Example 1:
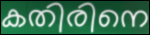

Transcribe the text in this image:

കതിരിനെ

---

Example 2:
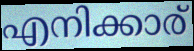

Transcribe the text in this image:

എനിക്കാര്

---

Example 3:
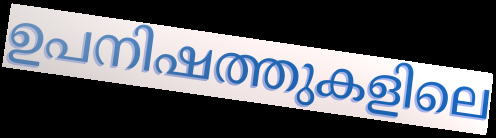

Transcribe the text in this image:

ഉപനിഷത്തുകളിലെ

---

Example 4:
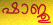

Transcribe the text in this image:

ഷാജു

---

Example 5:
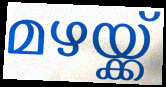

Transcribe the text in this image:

മഴയ്ക്ക്